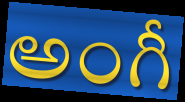
అంగీ